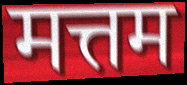
मत्तम